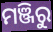
ମଞ୍ଜିରୁ